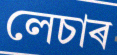
লেচাৰ